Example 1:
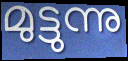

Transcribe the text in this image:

മുട്ടുന്നു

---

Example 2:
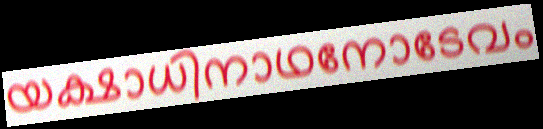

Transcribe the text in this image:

യക്ഷാധിനാഥനോടേവം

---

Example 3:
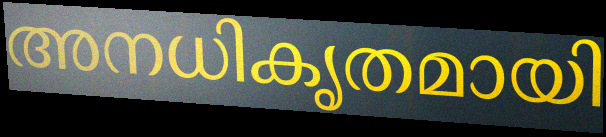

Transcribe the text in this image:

അനധികൃതമായി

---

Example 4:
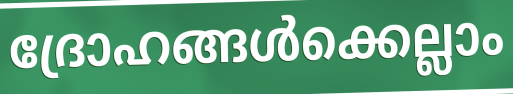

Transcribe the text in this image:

ദ്രോഹങ്ങൾക്കെല്ലാം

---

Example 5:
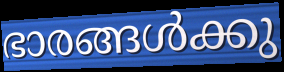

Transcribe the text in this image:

ഭാരങ്ങൾക്കു